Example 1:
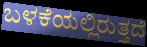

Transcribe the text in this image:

ಬಳಕೆಯಲ್ಲಿರುತ್ತದೆ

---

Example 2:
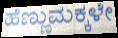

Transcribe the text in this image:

ಹೆಣ್ಣುಮಕ್ಕಳೇ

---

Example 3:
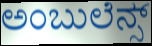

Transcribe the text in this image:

ಅಂಬುಲೆನ್ಸ್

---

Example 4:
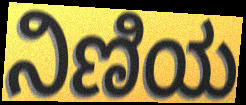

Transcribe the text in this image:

ನಿಣಿಯ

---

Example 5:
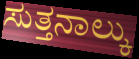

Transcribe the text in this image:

ಸುತ್ತನಾಲ್ಕು